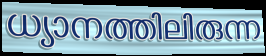
ധ്യാനത്തിലിരുന്ന